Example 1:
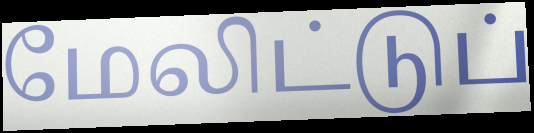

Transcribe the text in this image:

மேலிட்டுப்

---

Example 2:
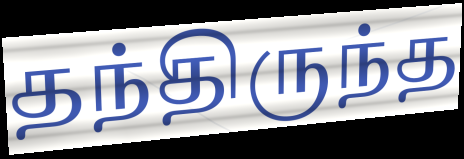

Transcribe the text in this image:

தந்திருந்த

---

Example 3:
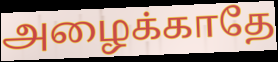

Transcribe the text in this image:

அழைக்காதே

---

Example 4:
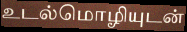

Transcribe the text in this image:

உடல்மொழியுடன்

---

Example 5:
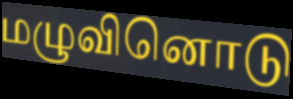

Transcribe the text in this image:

மழுவினொடு